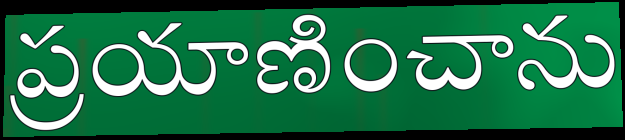
ప్రయాణించాను